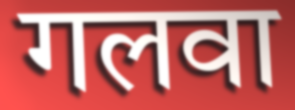
गलवा